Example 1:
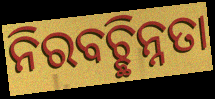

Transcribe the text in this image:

ନିରବଚ୍ଛିନ୍ନତା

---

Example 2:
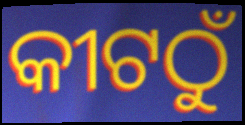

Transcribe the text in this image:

କୀଟଠୁଁ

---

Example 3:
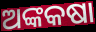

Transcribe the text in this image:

ଅଙ୍କକଷା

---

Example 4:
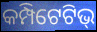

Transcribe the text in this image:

କମ୍ପିଟେଟିଭ୍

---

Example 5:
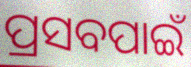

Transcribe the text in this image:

ପ୍ରସବପାଇଁ